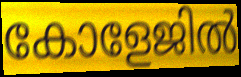
കോളേജിൽ